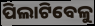
ପିଲାଟିବେଳୁ